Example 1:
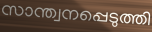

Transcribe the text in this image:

സാന്ത്വനപ്പെടുത്തി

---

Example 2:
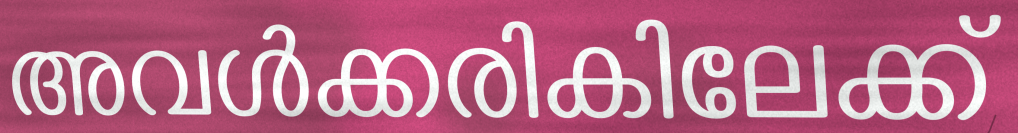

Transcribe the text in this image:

അവൾക്കരികിലേക്ക്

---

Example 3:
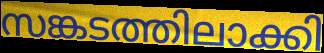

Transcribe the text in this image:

സങ്കടത്തിലാക്കി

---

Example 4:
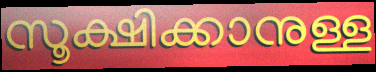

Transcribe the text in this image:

സൂക്ഷിക്കാനുള്ള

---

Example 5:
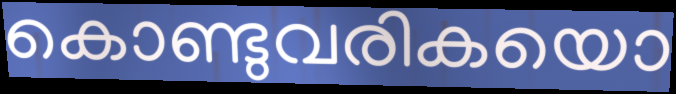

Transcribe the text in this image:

കൊണ്ടുവരികയൊ